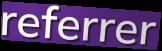
referrer